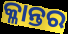
କ୍ଳାନ୍ତର